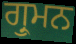
ਗ੍ਰੁਮਨ